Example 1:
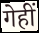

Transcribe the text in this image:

गेहीं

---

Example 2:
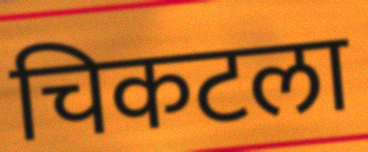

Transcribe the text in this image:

चिकटला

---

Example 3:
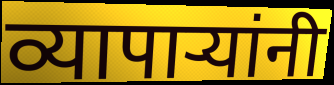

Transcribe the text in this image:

व्यापाऱ्यांनी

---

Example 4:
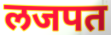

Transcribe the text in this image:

लजपत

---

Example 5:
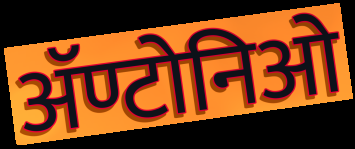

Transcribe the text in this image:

ॲण्टोनिओ